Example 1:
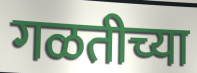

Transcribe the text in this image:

गळतीच्या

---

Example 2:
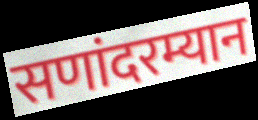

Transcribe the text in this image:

सणांदरम्यान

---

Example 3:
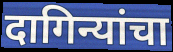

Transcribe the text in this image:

दागिन्यांचा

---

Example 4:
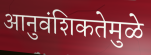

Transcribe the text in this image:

आनुवंशिकतेमुळे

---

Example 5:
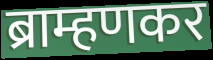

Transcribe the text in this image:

ब्राम्हणकर